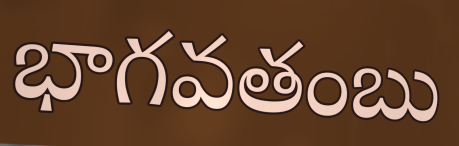
భాగవతంబు